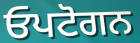
ਓਪਟੋਗਨ